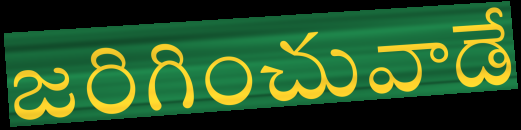
జరిగించువాడే